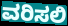
ವರಿಸಲಿ